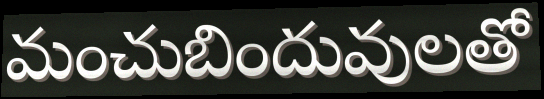
మంచుబిందువులతో